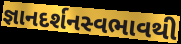
જ્ઞાનદર્શનસ્વભાવથી